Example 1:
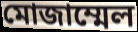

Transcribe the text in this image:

মোজাম্মেল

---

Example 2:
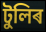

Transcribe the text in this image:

টুলিৰ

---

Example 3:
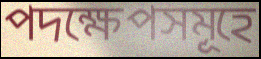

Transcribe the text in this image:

পদক্ষেপসমূহে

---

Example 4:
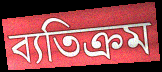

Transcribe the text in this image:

ব্যতিক্ৰম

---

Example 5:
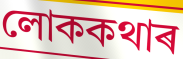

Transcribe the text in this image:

লোককথাৰ